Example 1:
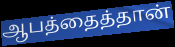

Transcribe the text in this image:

ஆபத்தைத்தான்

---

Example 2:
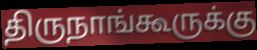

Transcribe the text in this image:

திருநாங்கூருக்கு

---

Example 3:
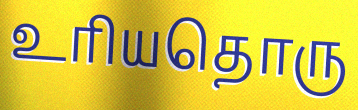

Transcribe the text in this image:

உரியதொரு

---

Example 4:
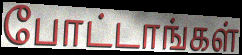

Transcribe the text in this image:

போட்டாங்கள்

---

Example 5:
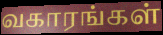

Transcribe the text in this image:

வகாரங்கள்